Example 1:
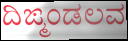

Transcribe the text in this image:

ದಿಙ್ಮಂಡಲವ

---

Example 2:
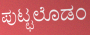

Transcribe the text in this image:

ಪುಟ್ಟಲೊಡಂ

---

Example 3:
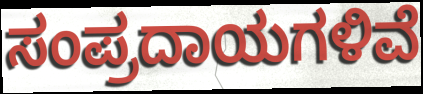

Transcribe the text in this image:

ಸಂಪ್ರದಾಯಗಳಿವೆ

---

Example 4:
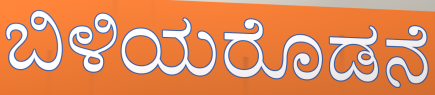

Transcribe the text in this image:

ಬಿಳಿಯರೊಡನೆ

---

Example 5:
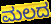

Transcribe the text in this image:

ಮಲದ